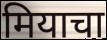
मियाचा